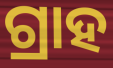
ଗ୍ରାହ